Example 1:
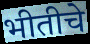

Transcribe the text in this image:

भीतीचे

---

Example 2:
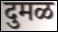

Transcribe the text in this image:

दुमळ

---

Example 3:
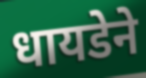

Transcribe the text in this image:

धायडेने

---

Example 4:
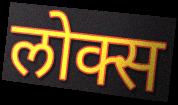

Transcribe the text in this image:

लोक्स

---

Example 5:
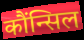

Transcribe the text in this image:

कौंन्सिल